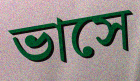
ভাসে